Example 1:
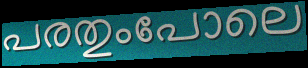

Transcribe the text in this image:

പരതുംപോലെ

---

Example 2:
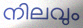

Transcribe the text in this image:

നിലവും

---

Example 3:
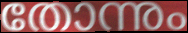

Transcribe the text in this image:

തോന്നും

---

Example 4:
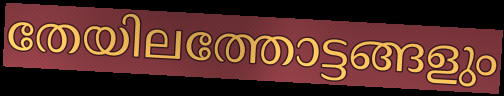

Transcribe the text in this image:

തേയിലത്തോട്ടങ്ങളും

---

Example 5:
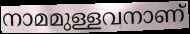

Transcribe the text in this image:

നാമമുള്ളവനാണ്